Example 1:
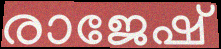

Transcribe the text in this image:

രാജേഷ്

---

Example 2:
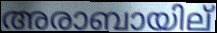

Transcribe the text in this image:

അരാബായില്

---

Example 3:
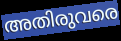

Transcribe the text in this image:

അതിരുവരെ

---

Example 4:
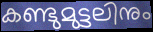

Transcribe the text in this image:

കണ്ടുമുട്ടലിനും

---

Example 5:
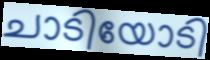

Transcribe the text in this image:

ചാടിയോടി